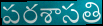
పరశాసతి